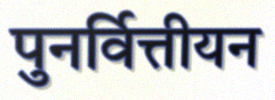
पुनर्वित्तीयन